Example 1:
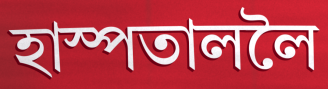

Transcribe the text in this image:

হাস্পতাললৈ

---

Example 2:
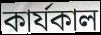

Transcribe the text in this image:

কাৰ্যকাল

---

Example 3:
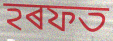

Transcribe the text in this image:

হৰফত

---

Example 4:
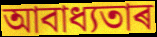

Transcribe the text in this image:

আবাধ্যতাৰ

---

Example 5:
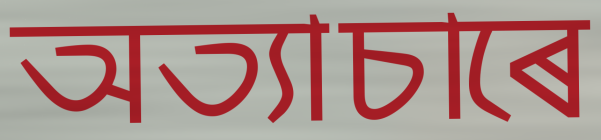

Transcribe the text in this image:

অত্যাচাৰে